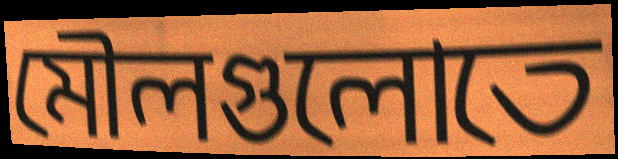
মৌলগুলোতে